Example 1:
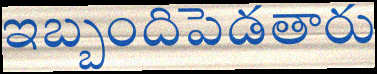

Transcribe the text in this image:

ఇబ్బందిపెడతారు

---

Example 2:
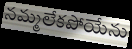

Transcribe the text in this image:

నమ్మలేకపోయేను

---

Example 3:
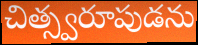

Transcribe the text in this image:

చిత్స్వరూపుడను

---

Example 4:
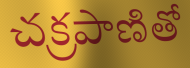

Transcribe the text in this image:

చక్రపాణితో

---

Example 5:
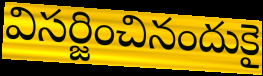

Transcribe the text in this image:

విసర్జించినందుకై